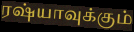
ரஷ்யாவுக்கும்